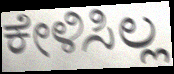
ಕೇಳಿಸಿಲ್ಲ